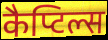
कैप्टिल्स